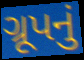
ગ્રૂપનું